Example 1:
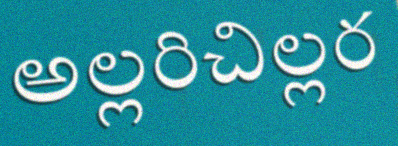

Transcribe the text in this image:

అల్లరిచిల్లర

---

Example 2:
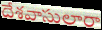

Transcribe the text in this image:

దేశవాసులారా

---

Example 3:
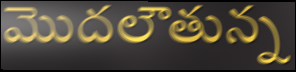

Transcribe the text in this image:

మొదలౌతున్న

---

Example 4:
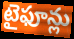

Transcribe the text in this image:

టైఫూన్లు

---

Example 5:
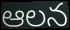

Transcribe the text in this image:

ఆలన